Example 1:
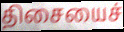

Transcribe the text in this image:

திசையைச்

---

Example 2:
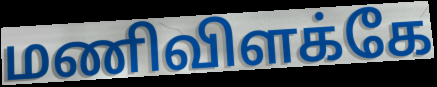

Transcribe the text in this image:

மணிவிளக்கே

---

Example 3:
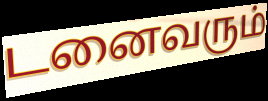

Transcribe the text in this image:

டனைவரும்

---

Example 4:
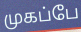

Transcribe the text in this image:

முகப்பே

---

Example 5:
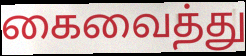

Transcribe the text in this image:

கைவைத்து